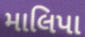
માલિપા